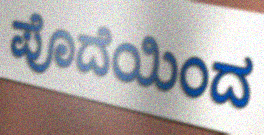
ಪೊದೆಯಿಂದ